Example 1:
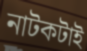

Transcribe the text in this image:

নাটকটাই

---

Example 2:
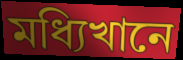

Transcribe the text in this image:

মধ্যিখানে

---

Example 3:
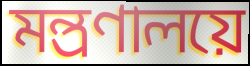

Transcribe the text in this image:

মন্ত্রণালয়ে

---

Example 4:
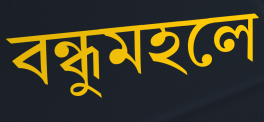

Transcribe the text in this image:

বন্ধুমহলে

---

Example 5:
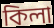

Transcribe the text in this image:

কিলা